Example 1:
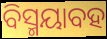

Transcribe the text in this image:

ବିସ୍ମୟାବହ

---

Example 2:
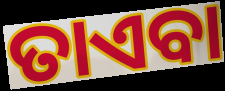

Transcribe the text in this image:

ତାଏବା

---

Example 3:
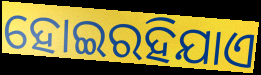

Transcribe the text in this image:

ହୋଇରହିଯାଏ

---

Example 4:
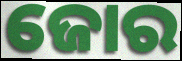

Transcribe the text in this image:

ଜୋର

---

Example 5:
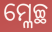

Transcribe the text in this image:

ମ୍ଳେଚ୍ଛ